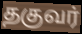
தகுவர்